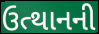
ઉત્થાનની